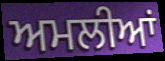
ਅਮਲੀਆਂ